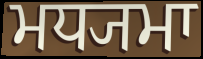
ਮਧ੍ਯਮਾ